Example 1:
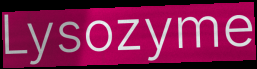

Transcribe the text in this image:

Lysozyme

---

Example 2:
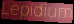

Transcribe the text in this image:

Lepidium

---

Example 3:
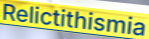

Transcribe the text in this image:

Relictithismia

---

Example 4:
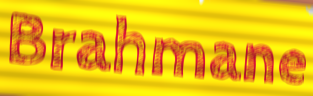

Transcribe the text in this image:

Brahmane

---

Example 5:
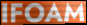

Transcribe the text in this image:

IFOAM